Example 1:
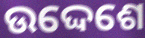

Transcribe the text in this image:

ଉଦ୍ଦେଶେ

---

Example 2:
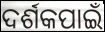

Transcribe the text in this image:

ଦର୍ଶକପାଇଁ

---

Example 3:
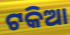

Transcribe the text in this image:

ଟକିଆ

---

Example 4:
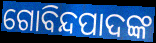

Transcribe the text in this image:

ଗୋବିନ୍ଦପାଦଙ୍କ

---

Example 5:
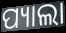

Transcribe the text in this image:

ପ୍ୟାଲା